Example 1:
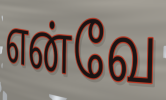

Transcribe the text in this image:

என்வே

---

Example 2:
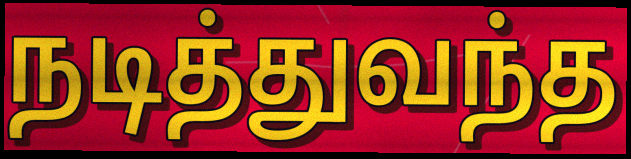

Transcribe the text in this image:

நடித்துவந்த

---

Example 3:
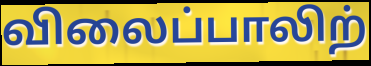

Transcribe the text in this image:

விலைப்பாலிற்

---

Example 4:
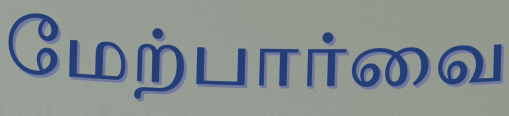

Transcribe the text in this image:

மேற்பார்வை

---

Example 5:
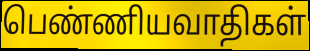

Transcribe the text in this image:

பெண்ணியவாதிகள்